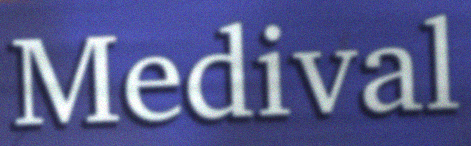
Medival